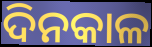
ଦିନକାଳ